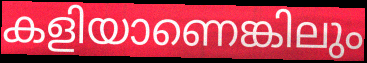
കളിയാണെങ്കിലും